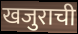
खजुराची